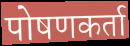
पोषणकर्ता